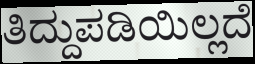
ತಿದ್ದುಪಡಿಯಿಲ್ಲದೆ